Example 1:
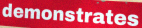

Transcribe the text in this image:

demonstrates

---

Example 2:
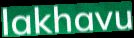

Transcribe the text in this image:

lakhavu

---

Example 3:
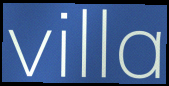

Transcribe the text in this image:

villa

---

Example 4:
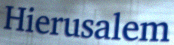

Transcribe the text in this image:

Hierusalem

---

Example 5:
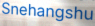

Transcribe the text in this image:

Snehangshu